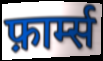
फ़ार्म्स